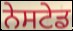
ਨੇਸਟੇਡ